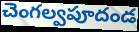
చెంగల్వపూదండ